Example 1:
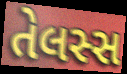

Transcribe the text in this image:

તેલસ્સ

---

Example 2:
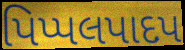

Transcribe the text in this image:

પિપ્પલપાદપ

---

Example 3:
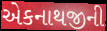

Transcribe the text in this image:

એકનાથજીની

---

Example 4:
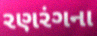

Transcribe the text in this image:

રણરંગના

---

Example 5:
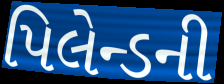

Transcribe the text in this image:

પિલેન્ડની